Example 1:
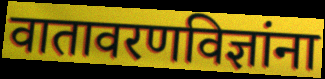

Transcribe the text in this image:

वातावरणविज्ञांना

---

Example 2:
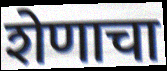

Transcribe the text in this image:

शेणाचा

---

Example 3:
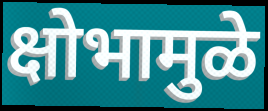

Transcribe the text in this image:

क्षोभामुळे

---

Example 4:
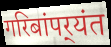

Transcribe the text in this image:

गरिबांपर्यंत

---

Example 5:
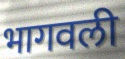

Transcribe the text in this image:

भागवली